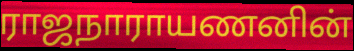
ராஜநாராயணனின்